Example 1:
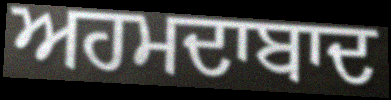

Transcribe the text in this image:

ਅਹਮਦਾਬਾਦ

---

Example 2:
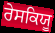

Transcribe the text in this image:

ਰੇਸਕਿਯੂ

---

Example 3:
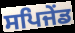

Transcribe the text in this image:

ਸਪਿਜੇਂਡ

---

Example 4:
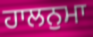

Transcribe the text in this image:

ਹਾਲਨੁਮਾ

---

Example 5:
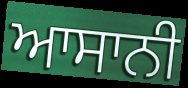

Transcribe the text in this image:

ਆਸਾਨੀ